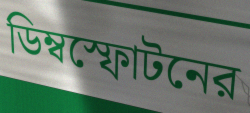
ডিম্বস্ফোটনের